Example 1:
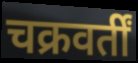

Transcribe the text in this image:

चक्रवर्तीं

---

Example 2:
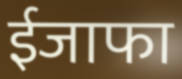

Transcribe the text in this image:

ईजाफा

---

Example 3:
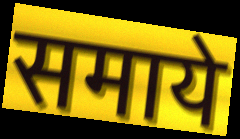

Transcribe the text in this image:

समाये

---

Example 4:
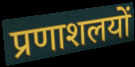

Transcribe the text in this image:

प्रणाशलयों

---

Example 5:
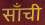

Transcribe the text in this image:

साँची